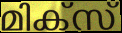
മിക്‌സ്